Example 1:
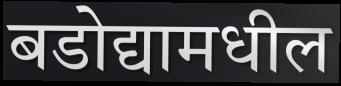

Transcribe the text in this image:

बडोद्यामधील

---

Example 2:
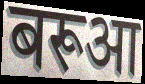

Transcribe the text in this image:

बरूआ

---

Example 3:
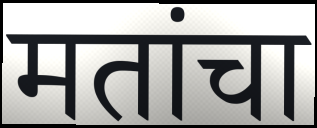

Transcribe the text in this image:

मतांचा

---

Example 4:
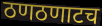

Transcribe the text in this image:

ठणठणाटच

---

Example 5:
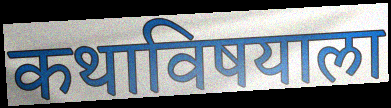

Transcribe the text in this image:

कथाविषयाला